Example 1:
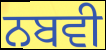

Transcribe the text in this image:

ਨਬਵੀ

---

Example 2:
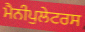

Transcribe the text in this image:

ਮੈਨੀਪੁਲੇਟਰਸ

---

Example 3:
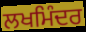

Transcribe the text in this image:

ਲਖਮਿੰਦਰ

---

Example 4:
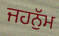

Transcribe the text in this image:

ਜਹਨੁੱਮ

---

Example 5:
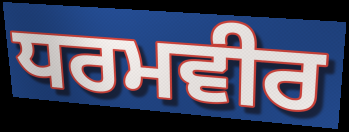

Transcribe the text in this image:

ਧਰਮਵੀਰ